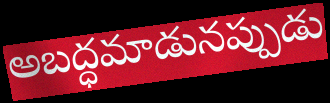
అబద్ధమాడునప్పుడు